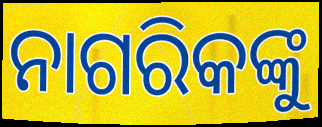
ନାଗରିକଙ୍କୁ